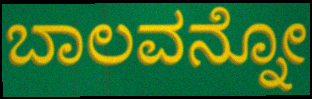
ಬಾಲವನ್ನೋ